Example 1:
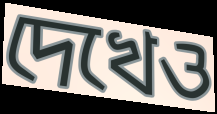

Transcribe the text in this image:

দেখেও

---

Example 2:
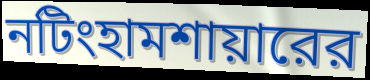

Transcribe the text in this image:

নটিংহামশায়ারের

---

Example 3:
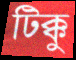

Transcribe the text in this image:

টিক্কু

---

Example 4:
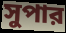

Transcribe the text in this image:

সুপার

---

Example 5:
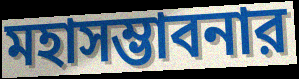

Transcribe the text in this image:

মহাসম্ভাবনার